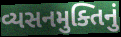
વ્યસનમુક્તિનું